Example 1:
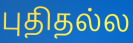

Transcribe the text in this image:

புதிதல்ல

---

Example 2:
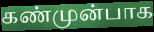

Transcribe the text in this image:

கண்முன்பாக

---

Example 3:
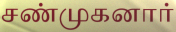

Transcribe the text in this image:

சண்முகனார்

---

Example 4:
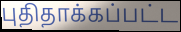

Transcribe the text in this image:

புதிதாக்கப்பட்ட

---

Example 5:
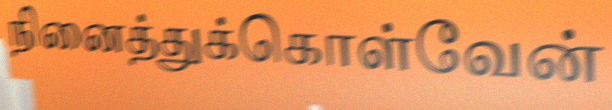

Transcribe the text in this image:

நினைத்துக்கொள்வேன்